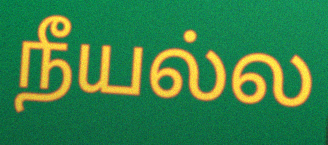
நீயல்ல